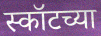
स्कॉटच्या